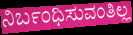
ನಿರ್ಬಂಧಿಸುವಂತಿಲ್ಲ